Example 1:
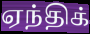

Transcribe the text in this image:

ஏந்திக்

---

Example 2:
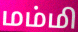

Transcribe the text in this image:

மம்மி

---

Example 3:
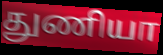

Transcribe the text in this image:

துணியா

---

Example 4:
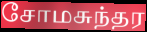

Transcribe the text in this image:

சோமசுந்தர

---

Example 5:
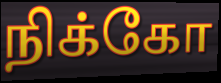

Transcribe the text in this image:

நிக்கோ